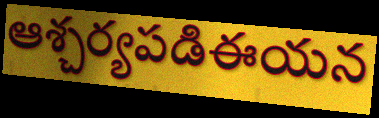
ఆశ్చర్యపడిఈయన